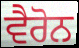
ਵੈਰੋਨ